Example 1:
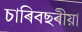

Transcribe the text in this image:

চাৰিবছৰীয়া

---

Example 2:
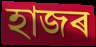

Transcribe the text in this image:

হাজৰ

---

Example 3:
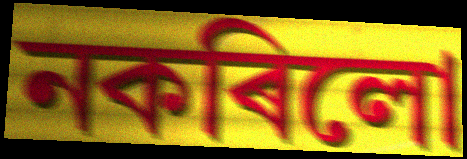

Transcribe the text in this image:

নকৰিলো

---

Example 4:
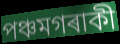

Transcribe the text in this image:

পঞ্চমগৰাকী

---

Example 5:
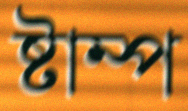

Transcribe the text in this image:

ষ্টাম্প